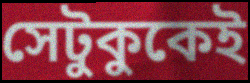
সেটুকুকেই